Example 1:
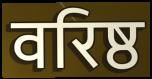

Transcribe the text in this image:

वरिष्ठ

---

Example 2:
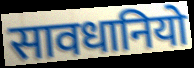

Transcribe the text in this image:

सावधानियो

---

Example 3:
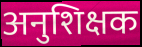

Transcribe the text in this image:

अनुशिक्षक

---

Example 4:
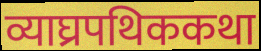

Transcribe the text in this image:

व्याघ्रपथिककथा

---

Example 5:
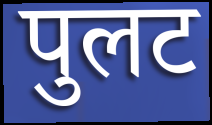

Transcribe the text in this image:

पुलट